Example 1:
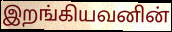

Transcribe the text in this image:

இறங்கியவனின்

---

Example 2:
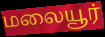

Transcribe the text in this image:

மலையூர்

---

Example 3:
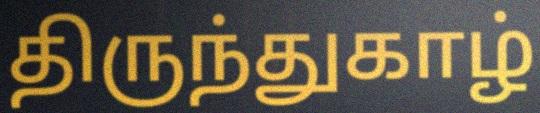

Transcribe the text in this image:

திருந்துகாழ்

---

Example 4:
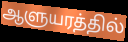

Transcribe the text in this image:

ஆளுயரத்தில்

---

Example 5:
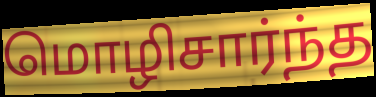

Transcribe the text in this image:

மொழிசார்ந்த